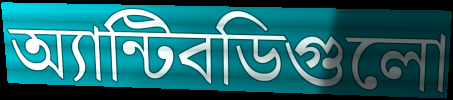
অ্যান্টিবডিগুলো